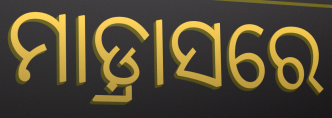
ମାଡ଼୍ରାସରେ